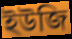
ইউজি